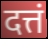
दत्तं